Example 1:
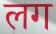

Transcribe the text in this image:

लग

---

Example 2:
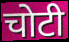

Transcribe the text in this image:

चोटी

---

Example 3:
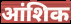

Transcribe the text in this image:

आंशिक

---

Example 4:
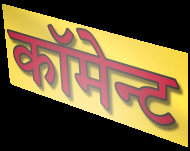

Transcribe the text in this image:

कॉमेन्ट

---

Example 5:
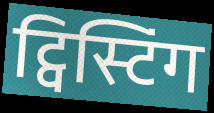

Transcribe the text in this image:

ट्विस्टिंग